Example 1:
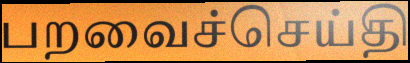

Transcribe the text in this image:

பறவைச்செய்தி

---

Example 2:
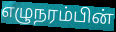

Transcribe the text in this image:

எழுநரம்பின்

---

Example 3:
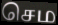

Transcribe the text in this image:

செம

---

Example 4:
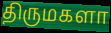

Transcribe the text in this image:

திருமகளா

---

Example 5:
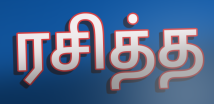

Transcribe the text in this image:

ரசித்த